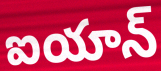
ఐయాన్